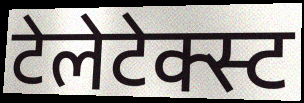
टेलेटेक्स्ट